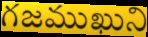
గజముఖుని